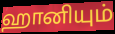
ஹானியும்